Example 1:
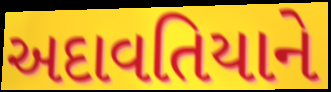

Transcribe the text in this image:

અદાવતિયાને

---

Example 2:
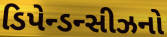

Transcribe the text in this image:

ડિપેન્ડન્સીઝનો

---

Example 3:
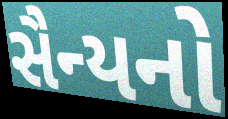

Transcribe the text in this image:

સૈન્યનો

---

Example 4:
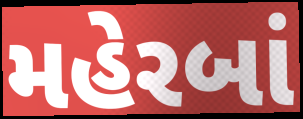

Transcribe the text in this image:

મહેરબાં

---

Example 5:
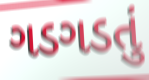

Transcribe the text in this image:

ગડગડતું